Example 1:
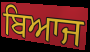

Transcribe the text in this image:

ਬਿਆਜ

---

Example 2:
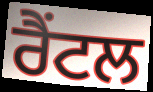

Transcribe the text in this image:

ਰੈਂਟਲ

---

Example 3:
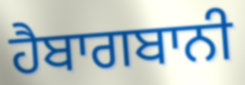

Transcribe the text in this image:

ਹੈਬਾਗਬਾਨੀ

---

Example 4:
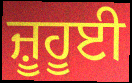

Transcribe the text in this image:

ਜ਼ੂਹੂਈ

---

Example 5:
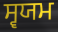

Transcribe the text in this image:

ਸ੍ਵਯਮ